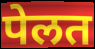
पेलत